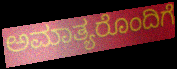
ಅಮಾತ್ಯರೊಂದಿಗೆ